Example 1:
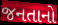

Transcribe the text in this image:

જનતાનો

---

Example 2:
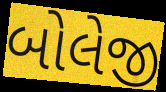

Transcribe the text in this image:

બોલેજી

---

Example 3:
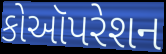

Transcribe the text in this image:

કોઑપરેશન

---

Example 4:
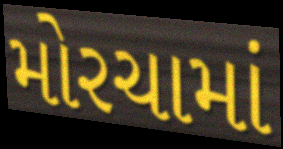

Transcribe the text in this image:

મોરચામાં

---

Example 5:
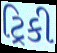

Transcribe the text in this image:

ટ્રિકી